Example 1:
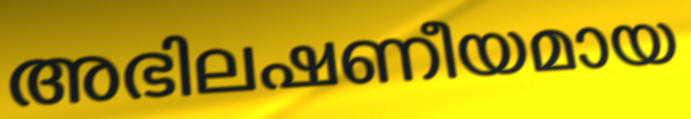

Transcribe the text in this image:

അഭിലഷണീയമായ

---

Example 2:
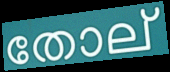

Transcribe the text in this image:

തോല്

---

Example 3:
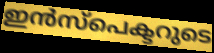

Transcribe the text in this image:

ഇൻസ്പെക്ടറുടെ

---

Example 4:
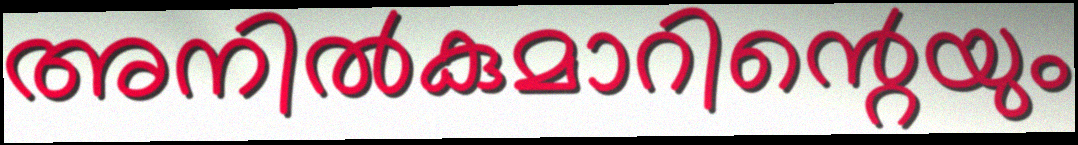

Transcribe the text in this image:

അനിൽകുമാറിന്റെയും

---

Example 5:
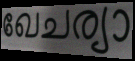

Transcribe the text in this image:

ഖേചര്യാ